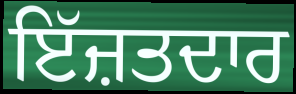
ਇੱਜ਼ਤਦਾਰ